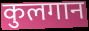
कुलगान